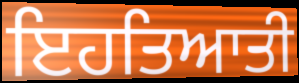
ਇਹਤਿਆਤੀ